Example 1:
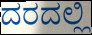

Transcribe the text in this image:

ದರದಲ್ಲಿ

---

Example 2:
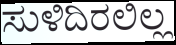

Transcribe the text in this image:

ಸುಳಿದಿರಲಿಲ್ಲ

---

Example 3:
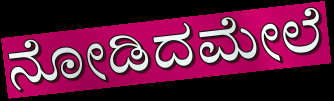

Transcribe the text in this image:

ನೋಡಿದಮೇಲೆ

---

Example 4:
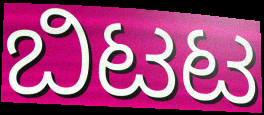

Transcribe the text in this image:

ಬಿಟಟ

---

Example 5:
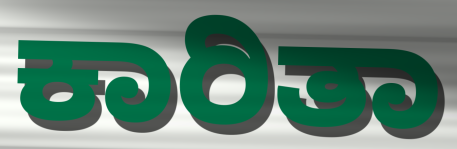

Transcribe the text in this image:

ಕಾರಿತಾ